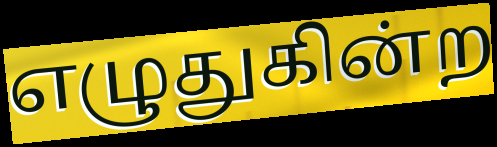
எழுதுகின்ற